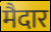
मैदार